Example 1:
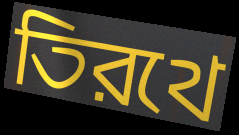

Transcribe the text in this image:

তিরথে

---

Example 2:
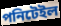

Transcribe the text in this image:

পনিটেইল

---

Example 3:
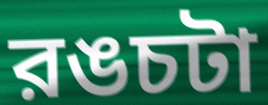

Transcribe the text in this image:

রঙচটা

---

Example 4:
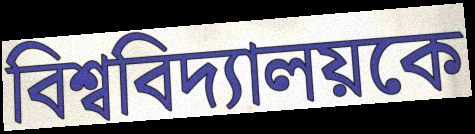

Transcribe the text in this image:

বিশ্ববিদ্যালয়কে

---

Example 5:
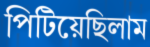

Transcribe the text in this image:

পিটিয়েছিলাম